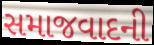
સમાજવાદની